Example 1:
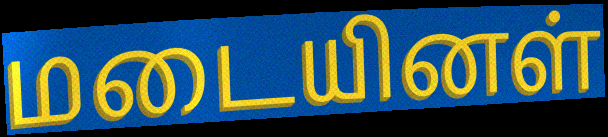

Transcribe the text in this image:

மடையினள்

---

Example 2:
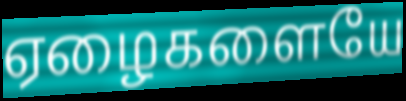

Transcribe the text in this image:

ஏழைகளையே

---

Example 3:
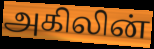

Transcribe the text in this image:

அகிலின்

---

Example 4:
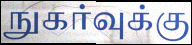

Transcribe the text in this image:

நுகர்வுக்கு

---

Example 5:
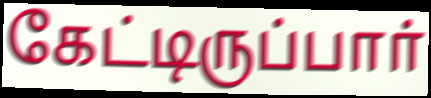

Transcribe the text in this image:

கேட்டிருப்பார்